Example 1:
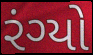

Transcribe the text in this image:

રંગ્યો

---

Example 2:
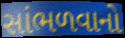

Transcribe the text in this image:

સાંભળવાનો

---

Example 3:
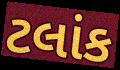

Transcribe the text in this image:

ટલાંક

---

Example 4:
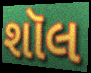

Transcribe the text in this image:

શૉલ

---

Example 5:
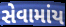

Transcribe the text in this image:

સેવામાંય